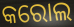
କରୋଲ